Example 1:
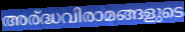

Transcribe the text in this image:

അര്ദ്ധവിരാമങ്ങളുടെ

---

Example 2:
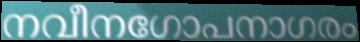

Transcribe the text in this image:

നവീനഗോപനാഗരം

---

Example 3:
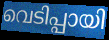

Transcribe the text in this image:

വെടിപ്പായി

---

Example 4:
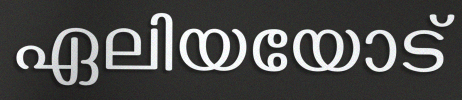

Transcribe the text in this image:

ഏലിയയോട്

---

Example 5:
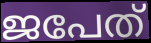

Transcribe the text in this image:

ജപേത്